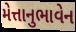
મેત્તાનુભાવેન